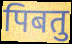
पिबतु